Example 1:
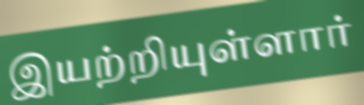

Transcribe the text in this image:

இயற்றியுள்ளார்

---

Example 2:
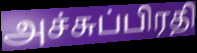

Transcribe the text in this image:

அச்சுப்பிரதி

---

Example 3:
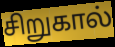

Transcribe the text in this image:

சிறுகால்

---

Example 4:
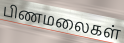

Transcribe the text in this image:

பிணமலைகள்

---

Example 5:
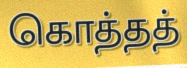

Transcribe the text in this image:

கொத்தத்